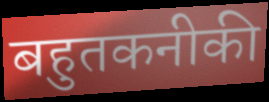
बहुतकनीकी